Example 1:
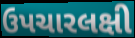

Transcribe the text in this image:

ઉપચારલક્ષી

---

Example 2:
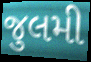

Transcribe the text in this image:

જુલમી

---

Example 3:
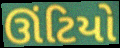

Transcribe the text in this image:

ઊંટિયો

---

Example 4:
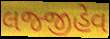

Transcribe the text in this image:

લજ્જીહેવ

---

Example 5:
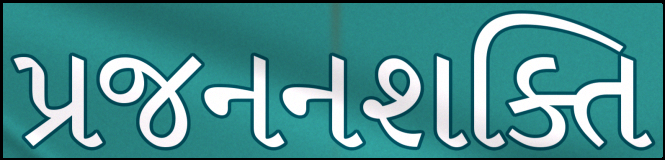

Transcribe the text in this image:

પ્રજનનશક્તિ